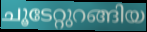
ചൂടേറ്റുറങ്ങിയ